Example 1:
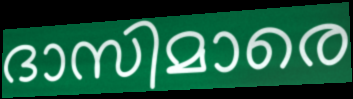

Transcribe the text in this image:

ദാസിമാരെ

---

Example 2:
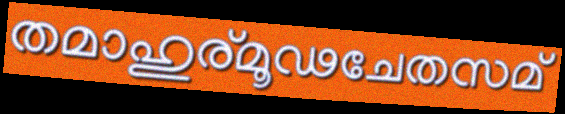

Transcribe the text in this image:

തമാഹുര്മൂഢചേതസമ്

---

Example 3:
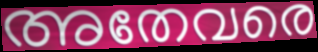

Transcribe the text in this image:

അതേവരെ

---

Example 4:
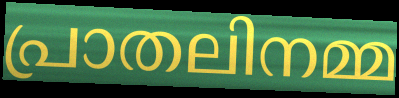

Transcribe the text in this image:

പ്രാതലിനമ്മ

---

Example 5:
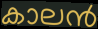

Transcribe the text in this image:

കാലൻ